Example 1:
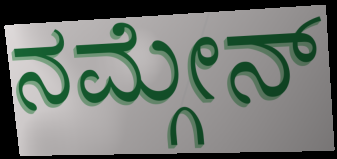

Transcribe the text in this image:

ನಮ್ಗೇನ್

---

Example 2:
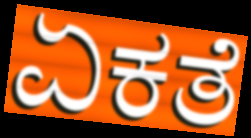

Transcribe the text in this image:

ಏಕತೆ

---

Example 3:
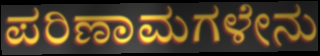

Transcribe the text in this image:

ಪರಿಣಾಮಗಳೇನು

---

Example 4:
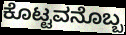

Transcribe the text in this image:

ಕೊಟ್ಟವನೊಬ್ಬ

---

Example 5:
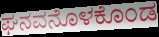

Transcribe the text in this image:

ಘನವನೊಳಕೊಂಡ